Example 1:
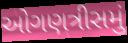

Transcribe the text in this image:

ઓગણત્રીસમું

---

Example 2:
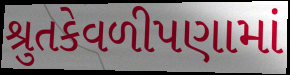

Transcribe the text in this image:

શ્રુતકેવળીપણામાં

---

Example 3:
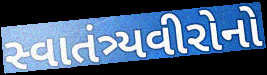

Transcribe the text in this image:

સ્વાતંત્ર્યવીરોનો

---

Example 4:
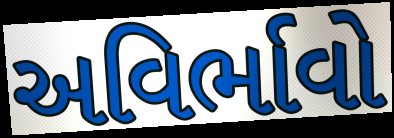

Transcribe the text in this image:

અવિર્ભાવો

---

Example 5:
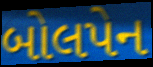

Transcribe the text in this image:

બોલપેન